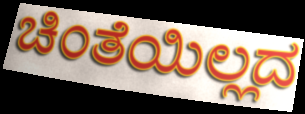
ಚಿಂತೆಯಿಲ್ಲದ